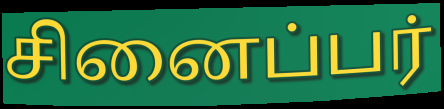
சினைப்பர்